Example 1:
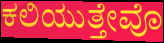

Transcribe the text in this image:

ಕಲಿಯುತ್ತೇವೊ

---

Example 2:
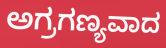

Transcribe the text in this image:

ಅಗ್ರಗಣ್ಯವಾದ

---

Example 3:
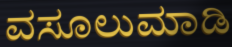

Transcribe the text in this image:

ವಸೂಲುಮಾಡಿ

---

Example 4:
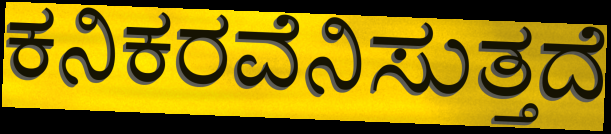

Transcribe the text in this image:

ಕನಿಕರವೆನಿಸುತ್ತದೆ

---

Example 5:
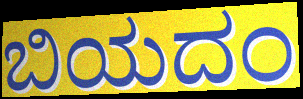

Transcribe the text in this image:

ಬಿಯದಂ